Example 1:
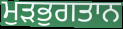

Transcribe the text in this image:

ਮੁੜਭੁਗਤਾਨ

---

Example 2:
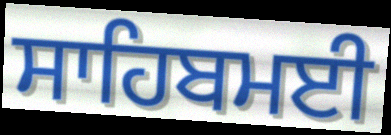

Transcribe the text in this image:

ਸਾਹਿਬਮਈ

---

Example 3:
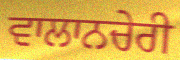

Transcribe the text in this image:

ਵਾਲਾਨਚੇਰੀ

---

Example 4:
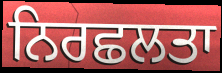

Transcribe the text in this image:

ਨਿਰਛਲਤਾ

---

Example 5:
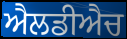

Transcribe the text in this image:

ਐਲਡੀਐਚ